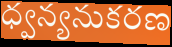
ధ్వన్యనుకరణ